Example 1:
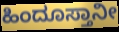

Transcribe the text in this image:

ಹಿಂದೂಸ್ತಾನೀ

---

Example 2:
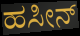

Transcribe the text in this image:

ಹಸೀನ್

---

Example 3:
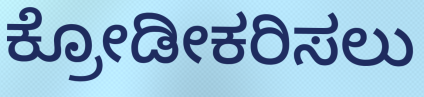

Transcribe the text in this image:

ಕ್ರೋಡೀಕರಿಸಲು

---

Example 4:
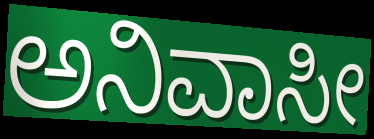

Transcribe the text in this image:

ಅನಿವಾಸೀ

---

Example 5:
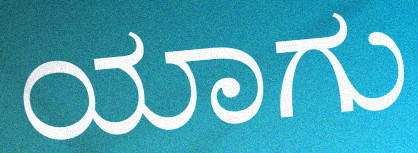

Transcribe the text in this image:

ಯಾಗು